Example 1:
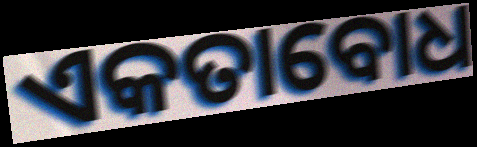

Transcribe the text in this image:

ଏକତାବୋଧ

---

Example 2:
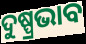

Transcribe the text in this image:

ଦୁଷ୍ପ୍ରଭାବ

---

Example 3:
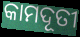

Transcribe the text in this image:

କାମଦୂତୀ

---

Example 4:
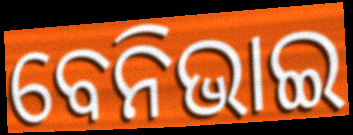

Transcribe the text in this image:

ବେନିଭାଇ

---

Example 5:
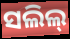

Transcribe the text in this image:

ସଲିଲ୍